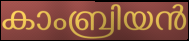
കാംബ്രിയൻ